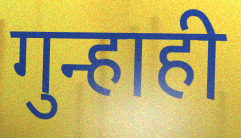
गुन्हाही